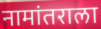
नामांतराला